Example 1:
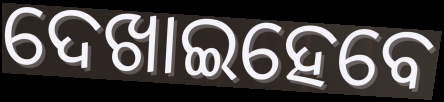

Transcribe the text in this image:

ଦେଖାଇହେବେ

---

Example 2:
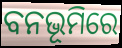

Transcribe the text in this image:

ବନଭୂମିରେ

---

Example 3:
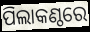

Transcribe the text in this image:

ପିଲାକଣ୍ଠରେ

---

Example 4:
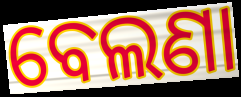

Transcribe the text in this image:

ବେଲଣା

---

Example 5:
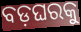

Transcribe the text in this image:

ବଡ଼ଘରକୁ